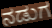
ನಡುಗ